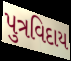
પુત્રવિદાય